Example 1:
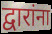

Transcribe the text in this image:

द्वारांना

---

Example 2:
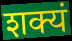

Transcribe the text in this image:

शक्यं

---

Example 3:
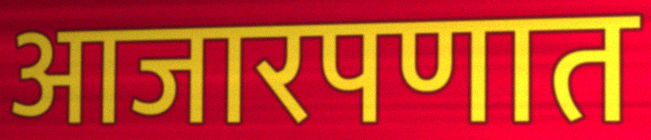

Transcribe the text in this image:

आजारपणात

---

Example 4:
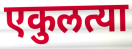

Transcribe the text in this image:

एकुलत्या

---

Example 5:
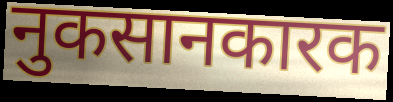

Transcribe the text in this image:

नुकसानकारक